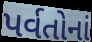
પર્વતોનાં